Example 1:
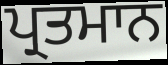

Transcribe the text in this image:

ਪ੍ਰਤਮਾਨ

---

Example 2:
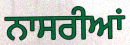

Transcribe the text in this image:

ਨਾਸਰੀਆਂ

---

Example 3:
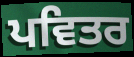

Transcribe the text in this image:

ਪਵਿਤਰ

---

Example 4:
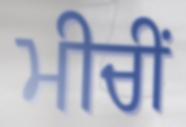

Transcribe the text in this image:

ਮੀਚੀਂ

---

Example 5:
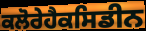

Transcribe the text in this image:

ਕਲੋਰੇਹੈਕਸਿਡੀਨ